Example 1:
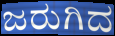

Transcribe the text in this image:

ಜರುಗಿದ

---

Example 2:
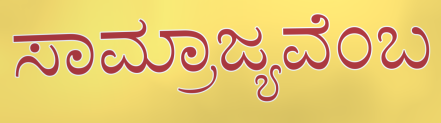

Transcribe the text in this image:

ಸಾಮ್ರಾಜ್ಯವೆಂಬ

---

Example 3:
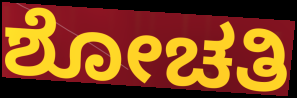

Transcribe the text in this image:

ಶೋಚತಿ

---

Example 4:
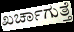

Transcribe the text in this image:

ಖರ್ಚಾಗುತ್ತೆ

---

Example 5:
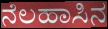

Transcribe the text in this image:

ನೆಲಹಾಸಿನ